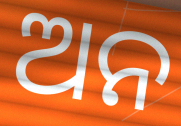
ଅନ